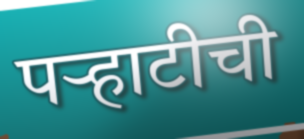
पऱ्हाटीची